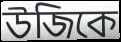
উজিকে